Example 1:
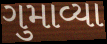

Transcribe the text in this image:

ગુમાવ્યા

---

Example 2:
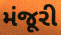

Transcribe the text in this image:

મંજૂરી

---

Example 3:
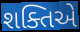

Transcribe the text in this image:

શક્તિએ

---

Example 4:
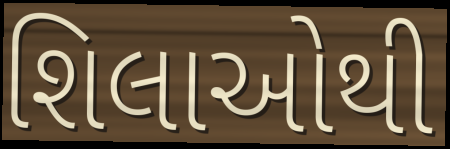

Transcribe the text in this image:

શિલાઓથી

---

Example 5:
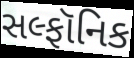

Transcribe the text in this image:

સલ્ફૉનિક